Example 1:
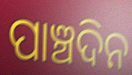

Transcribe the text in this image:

ପାଞ୍ଚଦିନ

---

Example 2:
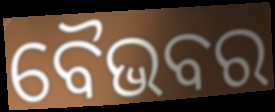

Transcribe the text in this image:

ବୈଭବର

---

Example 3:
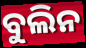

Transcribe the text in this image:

ବୁଲିନ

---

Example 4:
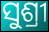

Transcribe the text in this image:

ସୁଶ୍ରୀ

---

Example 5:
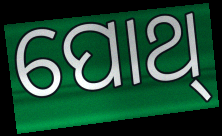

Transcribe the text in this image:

ପୋଥ୍